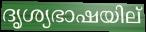
ദൃശ്യഭാഷയില്